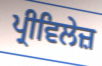
ਪ੍ਰੀਵਿਲੇਜ਼